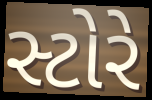
સ્ટોરે